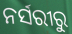
ନର୍ସରୀରୁ